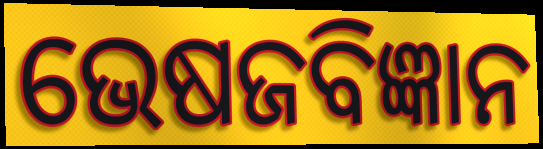
ଭେଷଜବିଜ୍ଞାନ